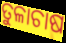
ତୁଳାଚାଷ